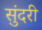
सुंदरी